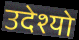
उदेश्यो